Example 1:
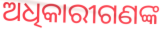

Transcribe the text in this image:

ଅଧିକାରୀଗଣଙ୍କ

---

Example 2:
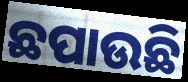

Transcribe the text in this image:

ଛପାଉଛି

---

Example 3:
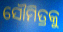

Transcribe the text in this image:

ସୌମିତ୍ରକୁ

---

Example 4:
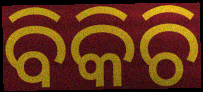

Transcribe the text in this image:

ବିକିଚି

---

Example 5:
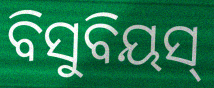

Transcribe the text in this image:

ବିସୁବିୟସ୍